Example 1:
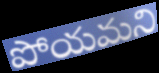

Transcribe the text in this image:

పోయమని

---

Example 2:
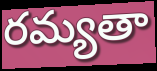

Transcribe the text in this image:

రమ్యతా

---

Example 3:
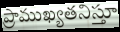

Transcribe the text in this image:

ప్రాముఖ్యతనిస్తూ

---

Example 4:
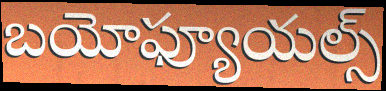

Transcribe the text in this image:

బయోఫ్యూయల్స్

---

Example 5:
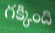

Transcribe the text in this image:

గక్కింది